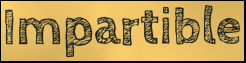
Impartible